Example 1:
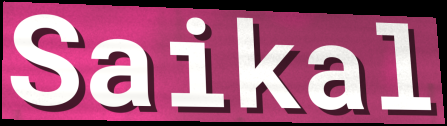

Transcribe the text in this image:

Saikal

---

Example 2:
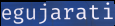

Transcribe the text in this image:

egujarati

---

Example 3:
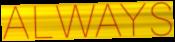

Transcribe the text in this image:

ALWAYS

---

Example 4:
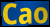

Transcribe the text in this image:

Cao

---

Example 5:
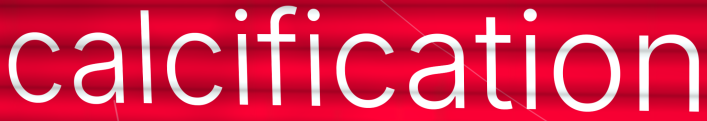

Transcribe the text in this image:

calcification